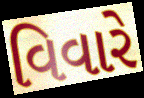
વિવારે